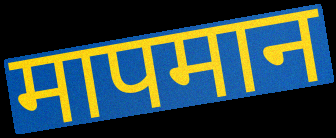
मापमान